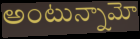
అంటున్నామో